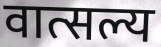
वात्सल्य